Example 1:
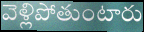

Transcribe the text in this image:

వెళ్లిపోతుంటారు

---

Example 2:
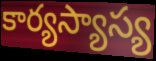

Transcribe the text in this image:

కార్యస్యాస్య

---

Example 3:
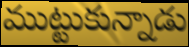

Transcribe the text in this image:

ముట్టుకున్నాడు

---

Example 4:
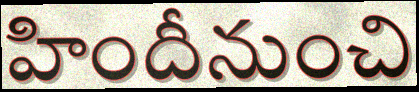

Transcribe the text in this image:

హిందీనుంచి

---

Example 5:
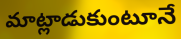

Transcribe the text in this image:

మాట్లాడుకుంటూనే